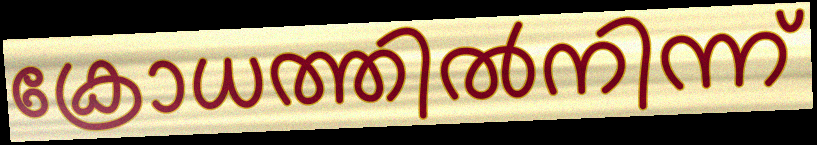
ക്രോധത്തിൽനിന്ന്